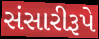
સંસારીરૂપે